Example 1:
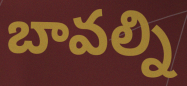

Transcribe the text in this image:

బావల్ని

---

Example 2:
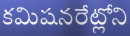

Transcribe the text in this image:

కమిషనరేట్లోని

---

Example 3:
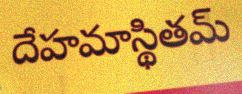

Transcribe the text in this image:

దేహమాస్థితమ్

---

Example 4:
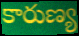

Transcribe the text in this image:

కారుణ్య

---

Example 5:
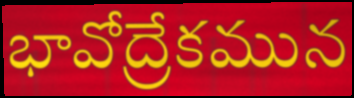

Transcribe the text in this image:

భావోద్రేకమున